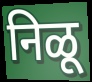
निळू